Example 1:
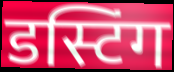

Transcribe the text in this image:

डस्टिंग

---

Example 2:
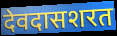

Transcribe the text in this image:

देवदासशरत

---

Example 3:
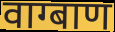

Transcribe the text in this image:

वाग्बाण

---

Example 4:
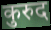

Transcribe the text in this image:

कुरुद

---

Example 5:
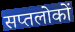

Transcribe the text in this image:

सप्तलोकों